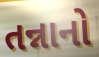
તન્નાનો